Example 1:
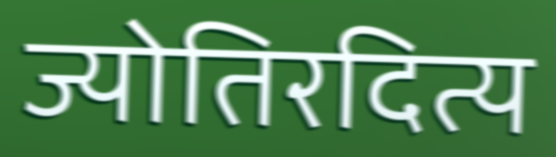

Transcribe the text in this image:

ज्योतिरदित्य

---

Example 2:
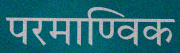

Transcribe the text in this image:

परमाण्विक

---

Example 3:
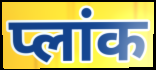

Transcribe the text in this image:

प्लांक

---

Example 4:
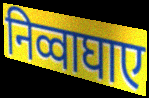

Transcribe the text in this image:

निव्वाघाए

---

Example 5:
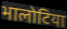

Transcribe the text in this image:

भालोटिया